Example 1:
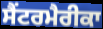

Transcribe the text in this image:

ਸੈਂਟਰਮੈਰੀਕਾ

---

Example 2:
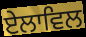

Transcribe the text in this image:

ਏਲਾਵਿਲ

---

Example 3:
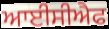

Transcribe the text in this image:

ਆਈਸੀਐਫ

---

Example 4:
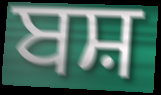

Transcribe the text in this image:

ਬਸ਼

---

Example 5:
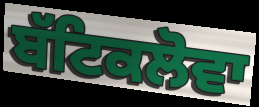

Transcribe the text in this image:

ਬੱਟਿਕਲੋਵਾ